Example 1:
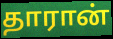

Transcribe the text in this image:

தாரான்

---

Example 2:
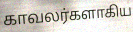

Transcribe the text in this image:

காவலர்களாகிய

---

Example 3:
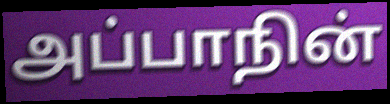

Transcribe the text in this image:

அப்பாநின்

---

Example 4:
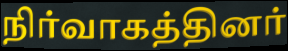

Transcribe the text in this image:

நிர்வாகத்தினர்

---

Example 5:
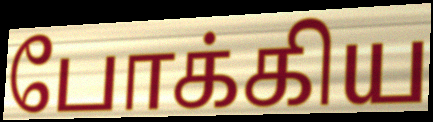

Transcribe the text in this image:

போக்கிய